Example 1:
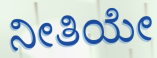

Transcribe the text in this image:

ನೀತಿಯೇ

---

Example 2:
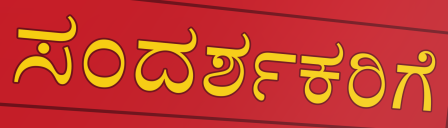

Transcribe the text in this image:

ಸಂದರ್ಶಕರಿಗೆ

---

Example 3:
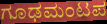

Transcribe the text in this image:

ಗೂಢಮಂಟಪ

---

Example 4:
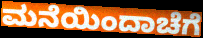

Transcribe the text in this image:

ಮನೆಯಿಂದಾಚೆಗೆ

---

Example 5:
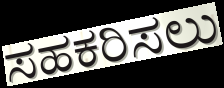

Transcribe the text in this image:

ಸಹಕರಿಸಲು